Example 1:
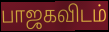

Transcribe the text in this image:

பாஜகவிடம்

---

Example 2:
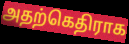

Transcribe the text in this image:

அதற்கெதிராக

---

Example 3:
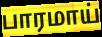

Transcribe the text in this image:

பாரமாய்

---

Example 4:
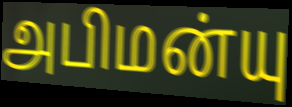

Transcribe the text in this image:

அபிமன்யு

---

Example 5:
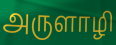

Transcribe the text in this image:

அருளாழி